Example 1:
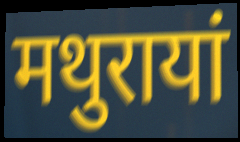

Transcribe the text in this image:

मथुरायां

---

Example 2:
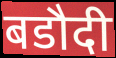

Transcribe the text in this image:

बडौदी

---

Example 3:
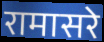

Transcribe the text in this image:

रामासरे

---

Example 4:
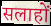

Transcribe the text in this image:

सलाहों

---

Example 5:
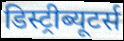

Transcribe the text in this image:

डिस्ट्रीब्यूटर्स